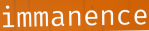
immanence